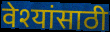
वेश्यांसाठी